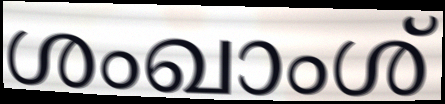
ശംഖാംശ്